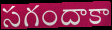
సగందాకా